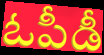
ఓపీడీ